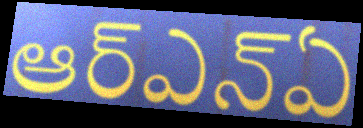
ఆర్ఎన్ఏ